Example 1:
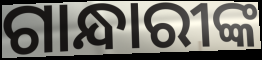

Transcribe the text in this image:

ଗାନ୍ଧାରୀଙ୍କ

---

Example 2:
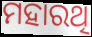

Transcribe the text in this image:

ମହାରଥି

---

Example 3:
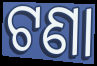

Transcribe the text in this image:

ଟଣା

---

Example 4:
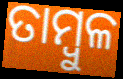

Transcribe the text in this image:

ତାମ୍ୱୁଳ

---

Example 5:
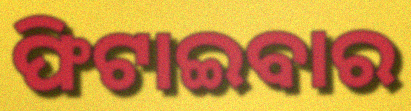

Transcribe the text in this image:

ଫିଟାଇବାର